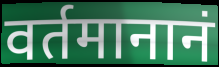
वर्तमानानं